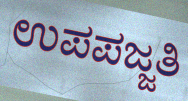
ಉಪಪಜ್ಜತಿ